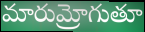
మారుమ్రోగుతూ